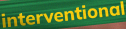
interventional